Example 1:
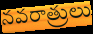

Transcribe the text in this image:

నవరాత్రులు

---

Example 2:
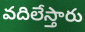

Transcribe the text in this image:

వదిలేస్తారు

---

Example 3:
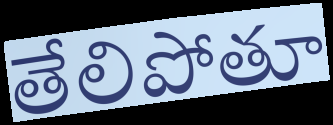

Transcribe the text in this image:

తేలిపోతూ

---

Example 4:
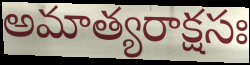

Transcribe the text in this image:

అమాత్యరాక్షసః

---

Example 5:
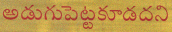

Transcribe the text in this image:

అడుగుపెట్టకూడదని